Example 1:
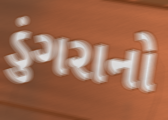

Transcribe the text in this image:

ડુંગરાનો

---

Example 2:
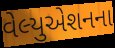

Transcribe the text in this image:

વેલ્યુએશનના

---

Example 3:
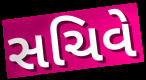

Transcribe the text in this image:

સચિવે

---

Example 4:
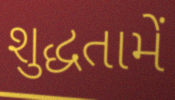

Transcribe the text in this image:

શુદ્ધતામેં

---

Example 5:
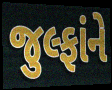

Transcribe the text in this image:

જુલ્ફાંને